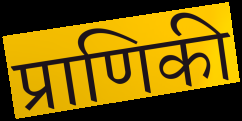
प्राणिकी